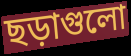
ছড়াগুলো